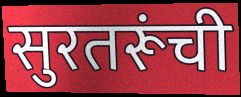
सुरतरूंची